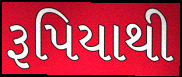
રૂપિયાથી